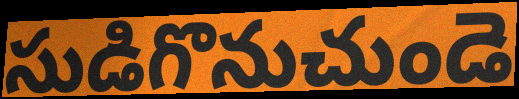
సుడిగొనుచుండె